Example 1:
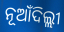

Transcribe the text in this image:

ନୂଆଁଦିଲ୍ଲୀ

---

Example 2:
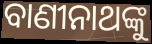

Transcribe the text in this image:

ବାଣୀନାଥଙ୍କୁ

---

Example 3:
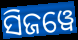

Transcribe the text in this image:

ସିଜୱେ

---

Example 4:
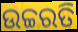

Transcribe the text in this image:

ଉଚ୍ଚରତି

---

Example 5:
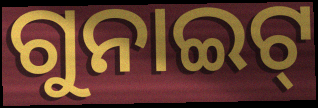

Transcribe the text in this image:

ଗୁନାଇଟ୍